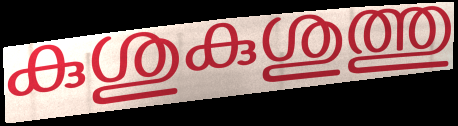
കുശുകുശുത്തു